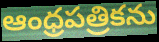
ఆంధ్రపత్రికను